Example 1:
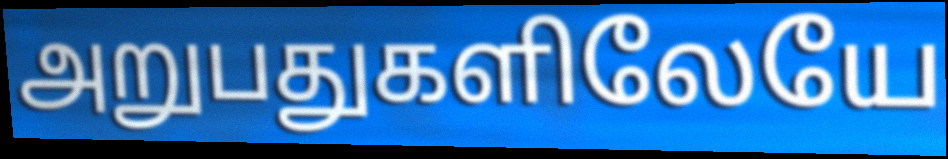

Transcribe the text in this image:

அறுபதுகளிலேயே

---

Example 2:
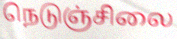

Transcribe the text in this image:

நெடுஞ்சிலை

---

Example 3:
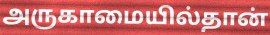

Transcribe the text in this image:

அருகாமையில்தான்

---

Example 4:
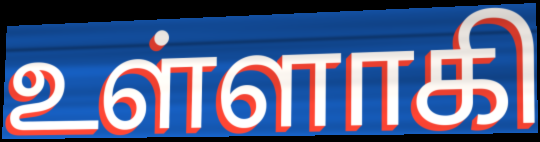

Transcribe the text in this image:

உள்ளாகி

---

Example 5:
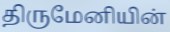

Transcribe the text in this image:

திருமேனியின்